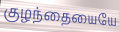
குழந்தையையே